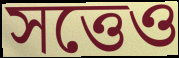
সত্তেও